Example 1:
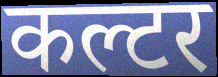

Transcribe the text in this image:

कल्टर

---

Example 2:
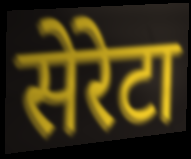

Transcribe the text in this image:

सेरेटा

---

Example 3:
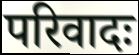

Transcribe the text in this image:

परिवादः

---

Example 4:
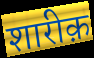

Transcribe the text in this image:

शारीक़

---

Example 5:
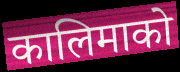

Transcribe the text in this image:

कालिमाको